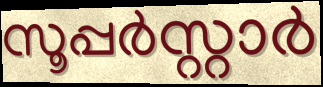
സൂപ്പർസ്റ്റാർ